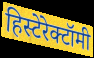
हिस्टेरेक्टॉमी